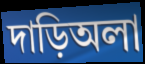
দাড়িঅলা